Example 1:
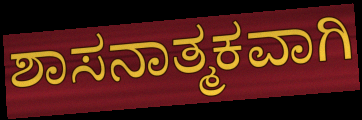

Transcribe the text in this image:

ಶಾಸನಾತ್ಮಕವಾಗಿ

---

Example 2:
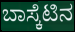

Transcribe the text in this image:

ಬಾಸ್ಕೆಟಿನ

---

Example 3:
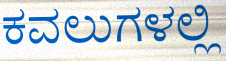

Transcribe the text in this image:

ಕವಲುಗಳಲ್ಲಿ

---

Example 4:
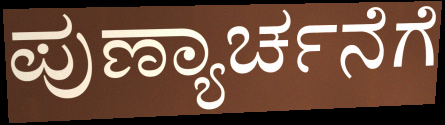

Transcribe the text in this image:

ಪುಣ್ಯಾರ್ಚನೆಗೆ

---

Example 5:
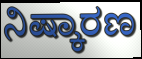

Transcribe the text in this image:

ನಿಷ್ಕಾರಣ